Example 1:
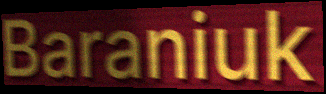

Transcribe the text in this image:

Baraniuk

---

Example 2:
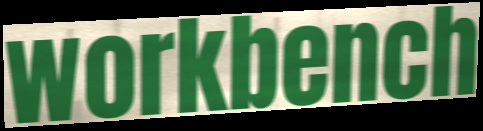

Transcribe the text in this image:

workbench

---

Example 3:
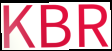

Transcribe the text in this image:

KBR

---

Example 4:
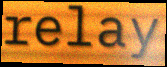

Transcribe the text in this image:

relay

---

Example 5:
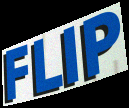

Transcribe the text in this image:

FLIP